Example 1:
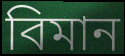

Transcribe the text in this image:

বিমান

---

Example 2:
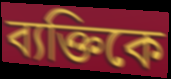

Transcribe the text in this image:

ব্যক্তিকে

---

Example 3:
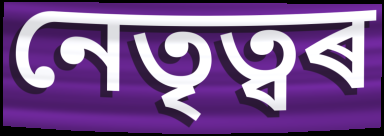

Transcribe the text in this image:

নেতৃত্বৰ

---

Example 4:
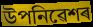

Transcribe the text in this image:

উপনিৱেশৰ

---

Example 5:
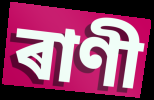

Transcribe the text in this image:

ৰাণী